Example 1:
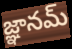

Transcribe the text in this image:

జ్ఞానమ్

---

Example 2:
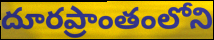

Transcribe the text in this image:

దూరప్రాంతంలోని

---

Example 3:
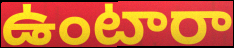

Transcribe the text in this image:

ఉంటారా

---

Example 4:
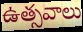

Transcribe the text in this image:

ఉత్సవాలు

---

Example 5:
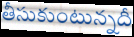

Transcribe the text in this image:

తీసుకుంటున్నదీ